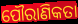
ପୌରାଣିକତା